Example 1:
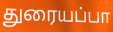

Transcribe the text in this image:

துரையப்பா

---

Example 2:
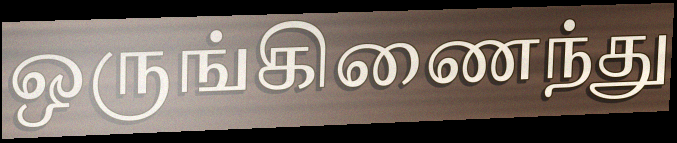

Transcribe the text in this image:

ஒருங்கிணைந்து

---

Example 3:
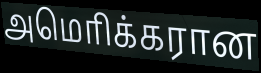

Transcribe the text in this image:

அமெரிக்கரான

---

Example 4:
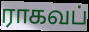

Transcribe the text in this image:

ராகவப்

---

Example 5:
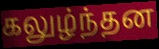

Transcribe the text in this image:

கலுழ்ந்தன